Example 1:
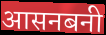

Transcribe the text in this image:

आसनबनी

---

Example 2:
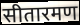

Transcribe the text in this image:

सीतारमण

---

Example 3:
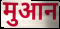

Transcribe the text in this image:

मुआन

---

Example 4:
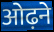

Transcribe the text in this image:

ओढ़ने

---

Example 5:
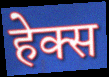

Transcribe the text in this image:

हेक्स